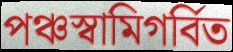
পঞ্চস্বামিগর্বিত